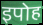
इपोह